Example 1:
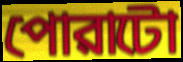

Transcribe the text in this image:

পোৱাটো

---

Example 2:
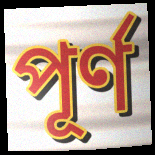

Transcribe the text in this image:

পূৰ্ণ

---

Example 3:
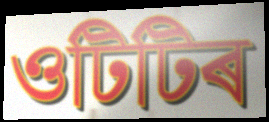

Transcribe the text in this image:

ওটিটিৰ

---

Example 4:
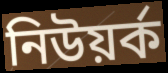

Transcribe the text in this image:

নিউয়ৰ্ক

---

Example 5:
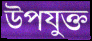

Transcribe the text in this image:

উপযুক্ত